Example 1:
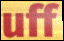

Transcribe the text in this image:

uff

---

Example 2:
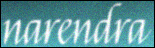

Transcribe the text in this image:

narendra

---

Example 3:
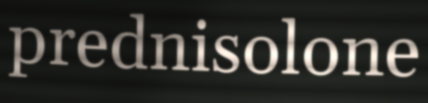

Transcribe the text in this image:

prednisolone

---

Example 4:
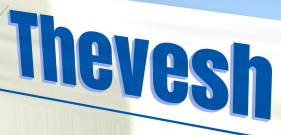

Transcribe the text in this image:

Thevesh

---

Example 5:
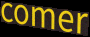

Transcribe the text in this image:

comer